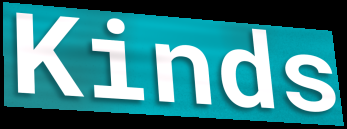
Kinds